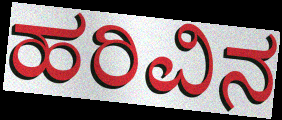
ಹರಿವಿನ